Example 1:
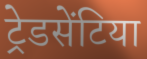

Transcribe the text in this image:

ट्रेडसेंटिया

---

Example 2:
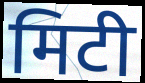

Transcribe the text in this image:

मिटी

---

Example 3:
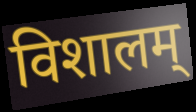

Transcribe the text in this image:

विशालम्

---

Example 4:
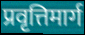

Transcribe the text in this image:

प्रवृत्तिमार्ग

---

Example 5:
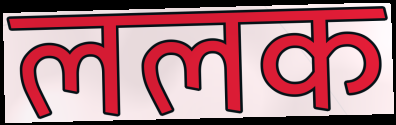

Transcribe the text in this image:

ललक